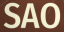
SAO